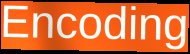
Encoding